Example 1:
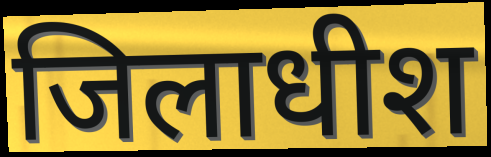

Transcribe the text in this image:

जिलाधीश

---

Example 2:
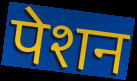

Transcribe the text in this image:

पेशन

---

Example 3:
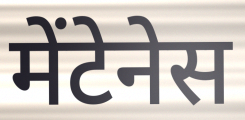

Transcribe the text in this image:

मेंटेनेस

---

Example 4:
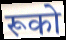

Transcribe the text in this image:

रूको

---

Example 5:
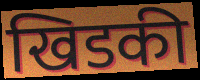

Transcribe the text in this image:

खिडकी